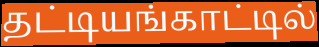
தட்டியங்காட்டில்